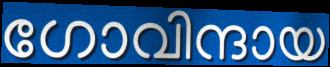
ഗോവിന്ദായ